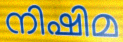
നിഷിമ